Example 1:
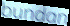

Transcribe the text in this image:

bundan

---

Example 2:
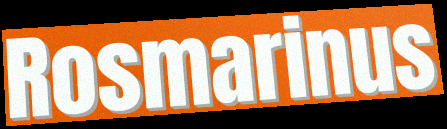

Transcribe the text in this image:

Rosmarinus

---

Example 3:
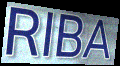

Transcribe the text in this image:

RIBA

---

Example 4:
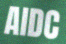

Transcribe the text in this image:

AIDC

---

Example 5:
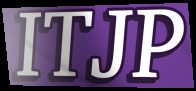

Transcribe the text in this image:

ITJP